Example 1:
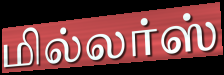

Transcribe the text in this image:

மில்லர்ஸ்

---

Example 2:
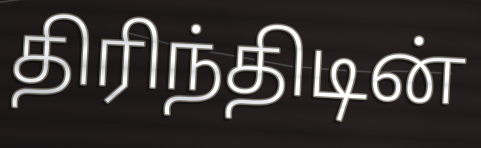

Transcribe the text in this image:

திரிந்திடின்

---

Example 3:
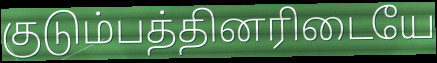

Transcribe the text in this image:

குடும்பத்தினரிடையே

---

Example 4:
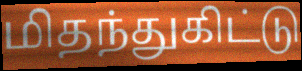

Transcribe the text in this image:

மிதந்துகிட்டு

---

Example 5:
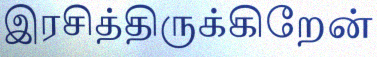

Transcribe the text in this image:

இரசித்திருக்கிறேன்